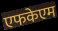
एफकेएम